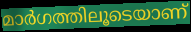
മാർഗത്തിലൂടെയാണ്